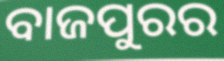
ବାଜପୁରର